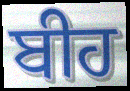
ਬੀਹ